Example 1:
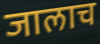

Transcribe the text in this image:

जालाच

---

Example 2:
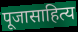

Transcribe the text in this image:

पूजासाहित्य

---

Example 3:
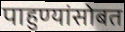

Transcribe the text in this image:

पाहुण्यांसोबत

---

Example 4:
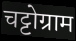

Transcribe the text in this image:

चट्टोग्राम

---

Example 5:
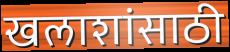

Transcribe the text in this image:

खलाशांसाठी